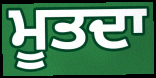
ਮੂਤਦਾ